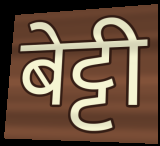
बेट्टी